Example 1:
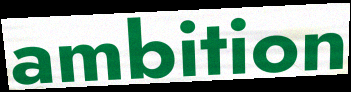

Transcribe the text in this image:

ambition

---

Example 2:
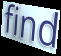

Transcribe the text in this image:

find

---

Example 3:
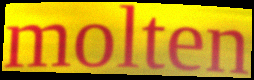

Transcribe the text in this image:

molten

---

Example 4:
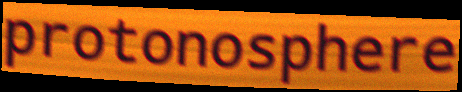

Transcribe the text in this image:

protonosphere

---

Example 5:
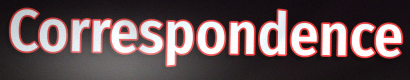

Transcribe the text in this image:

Correspondence